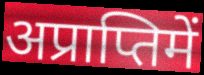
अप्राप्तिमें